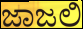
ಜಾಜಲಿ